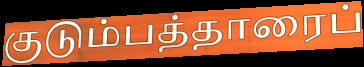
குடும்பத்தாரைப்